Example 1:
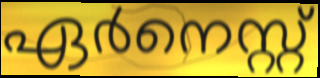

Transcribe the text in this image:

ഏർനെസ്റ്റ്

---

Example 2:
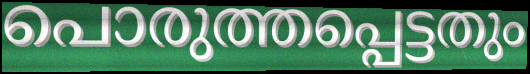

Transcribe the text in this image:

പൊരുത്തപ്പെട്ടതും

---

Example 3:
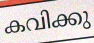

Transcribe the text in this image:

കവിക്കു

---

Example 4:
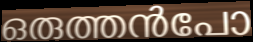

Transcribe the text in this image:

ഒരുത്തൻപോ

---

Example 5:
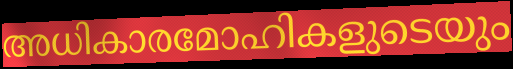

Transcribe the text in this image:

അധികാരമോഹികളുടെയും